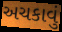
અચકાવું